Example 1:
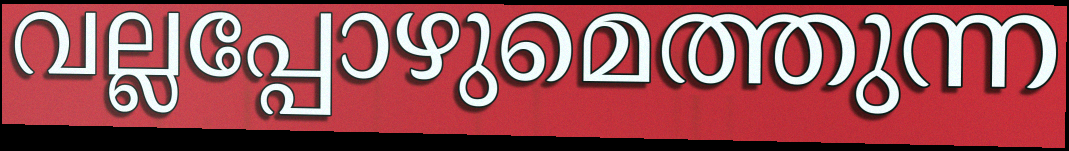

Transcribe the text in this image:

വല്ലപ്പോഴുമെത്തുന്ന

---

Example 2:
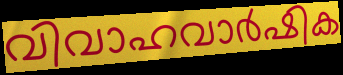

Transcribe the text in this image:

വിവാഹവാർഷിക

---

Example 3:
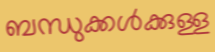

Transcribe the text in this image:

ബന്ധുക്കൾക്കുള്ള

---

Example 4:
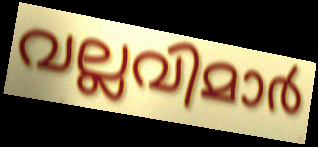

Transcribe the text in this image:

വല്ലവിമാർ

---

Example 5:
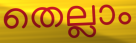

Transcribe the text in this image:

തെല്ലാം